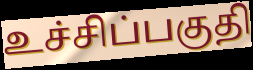
உச்சிப்பகுதி